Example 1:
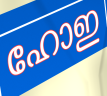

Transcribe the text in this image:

ഹോഇ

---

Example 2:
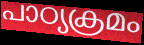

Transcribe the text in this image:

പാഠ്യക്രമം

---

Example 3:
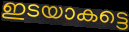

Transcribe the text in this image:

ഇടയാകട്ടെ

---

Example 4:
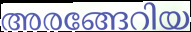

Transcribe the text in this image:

അരങ്ങേറിയ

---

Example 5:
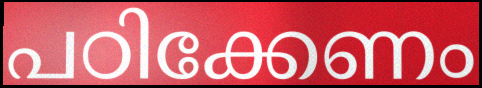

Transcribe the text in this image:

പഠിക്കേണം